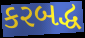
કરબદ્ધ